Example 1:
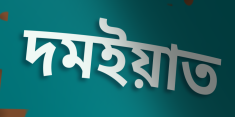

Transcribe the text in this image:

দমইয়াত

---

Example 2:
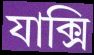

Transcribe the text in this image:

যাক্সি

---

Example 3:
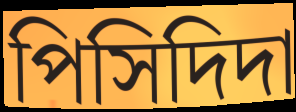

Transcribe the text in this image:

পিসিদিদা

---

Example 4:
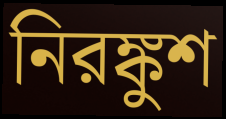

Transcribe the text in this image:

নিরঙ্কুশ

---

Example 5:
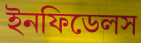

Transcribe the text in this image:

ইনফিডেলস